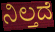
ನಿಲ್ತದೆ